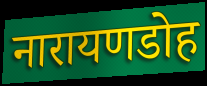
नारायणडोह